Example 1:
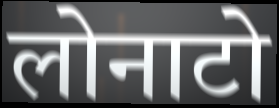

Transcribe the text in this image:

लोनाटो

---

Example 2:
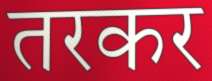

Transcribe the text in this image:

तरकर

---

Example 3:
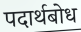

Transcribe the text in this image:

पदार्थबोध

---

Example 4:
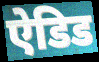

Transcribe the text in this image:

ऐडिड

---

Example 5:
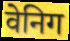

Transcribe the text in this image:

वेनिग